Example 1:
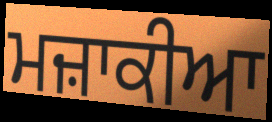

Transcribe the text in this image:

ਮਜ਼ਾਕੀਆ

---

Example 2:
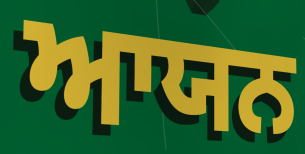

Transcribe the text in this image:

ਆਯਨ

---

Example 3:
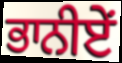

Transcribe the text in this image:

ਭਾਨੀਏਂ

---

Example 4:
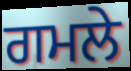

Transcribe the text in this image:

ਗਮਲੇ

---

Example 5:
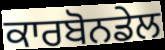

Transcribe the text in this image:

ਕਾਰਬੋਨਡੇਲ